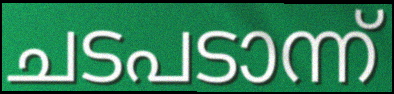
ചടപടാന്ന്